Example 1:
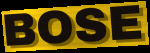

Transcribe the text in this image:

BOSE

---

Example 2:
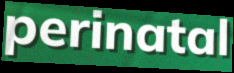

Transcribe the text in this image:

perinatal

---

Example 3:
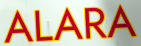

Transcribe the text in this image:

ALARA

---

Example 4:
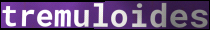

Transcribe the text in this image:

tremuloides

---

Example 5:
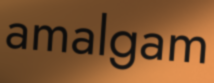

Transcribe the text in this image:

amalgam